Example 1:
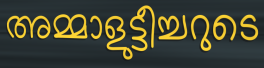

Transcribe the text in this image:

അമ്മാളുട്ടീച്ചറുടെ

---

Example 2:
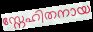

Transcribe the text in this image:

സ്നേഹിതനായ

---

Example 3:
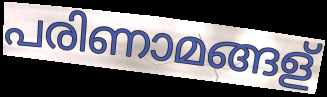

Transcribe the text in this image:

പരിണാമങ്ങള്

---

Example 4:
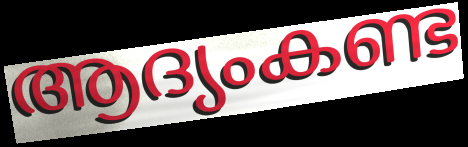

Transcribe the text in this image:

ആദ്യംകണ്ട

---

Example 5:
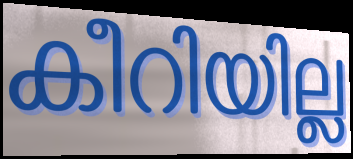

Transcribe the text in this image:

കീറിയില്ല